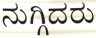
ನುಗ್ಗಿದರು